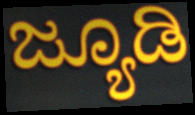
ಜ್ಯೂಡಿ